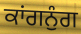
ਕਾਂਗਨੁੰਗ